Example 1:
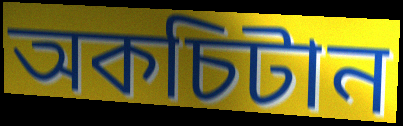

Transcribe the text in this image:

অকচিটান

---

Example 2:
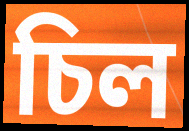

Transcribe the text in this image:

চিল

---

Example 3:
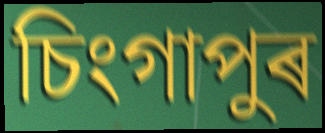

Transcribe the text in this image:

চিংগাপুৰ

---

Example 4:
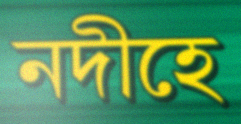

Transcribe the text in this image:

নদীহে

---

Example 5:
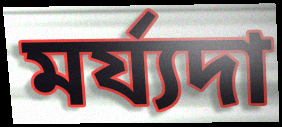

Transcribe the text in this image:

মৰ্য্যদা